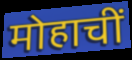
मोहाचीं